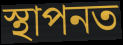
স্থাপনত